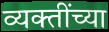
व्‍यक्‍तींच्‍या